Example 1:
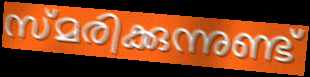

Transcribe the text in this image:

സ്മരിക്കുന്നുണ്ട്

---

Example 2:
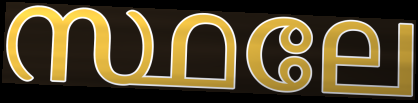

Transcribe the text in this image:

സ്ഥലേ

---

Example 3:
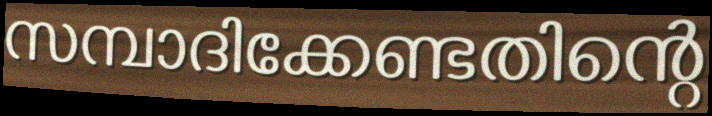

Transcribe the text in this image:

സമ്പാദിക്കേണ്ടതിന്റെ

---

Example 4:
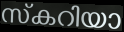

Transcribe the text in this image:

സ്‌കറിയാ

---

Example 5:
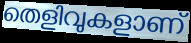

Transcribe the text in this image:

തെളിവുകളാണ്